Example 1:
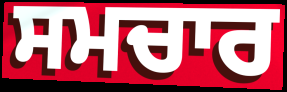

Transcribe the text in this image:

ਸਮਚਾਰ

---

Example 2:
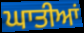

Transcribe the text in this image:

ਘਾਤੀਆਂ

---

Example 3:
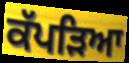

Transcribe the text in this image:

ਕੱਪੜਿਆ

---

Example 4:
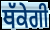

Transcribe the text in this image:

ਥੱਕੇਗੀ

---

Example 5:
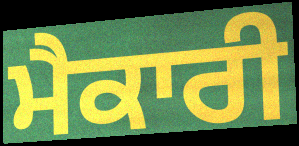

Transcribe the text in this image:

ਮੈਕਾਰੀ